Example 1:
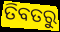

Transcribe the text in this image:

ତିବତରୁ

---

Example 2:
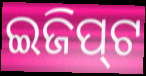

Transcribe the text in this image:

ଇଜିପ୍‌ଟ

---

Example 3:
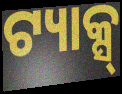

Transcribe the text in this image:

ଟ୍ୟାକ୍ସ୍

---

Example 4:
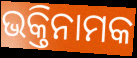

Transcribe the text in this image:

ଭକ୍ତିନାମକ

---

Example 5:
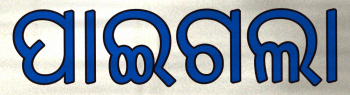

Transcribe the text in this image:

ପାଇଗଲା